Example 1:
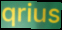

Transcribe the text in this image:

qrius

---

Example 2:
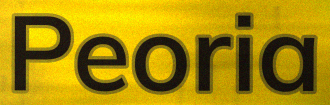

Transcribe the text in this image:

Peoria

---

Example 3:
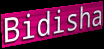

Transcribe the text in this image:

Bidisha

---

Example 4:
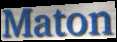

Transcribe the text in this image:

Maton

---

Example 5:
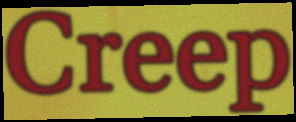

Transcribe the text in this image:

Creep